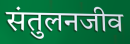
संतुलनजीव